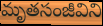
మృతసంజీవిని